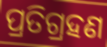
ପ୍ରତିଗ୍ରହଣ